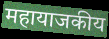
महायाजकीय